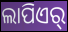
ଲାପିଏର୍